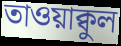
তাওয়াক্বুল